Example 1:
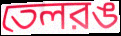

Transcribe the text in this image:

তেলরঙ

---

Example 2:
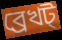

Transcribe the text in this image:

ব্রেখট্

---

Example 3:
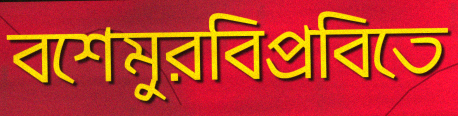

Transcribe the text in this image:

বশেমুরবিপ্রবিতে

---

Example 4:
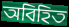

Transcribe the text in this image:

অবিহিত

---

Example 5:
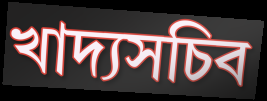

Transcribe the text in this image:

খাদ্যসচিব